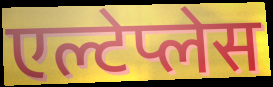
एल्टेप्लेस